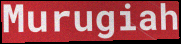
Murugiah